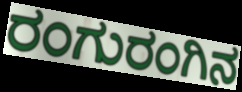
ರಂಗುರಂಗಿನ